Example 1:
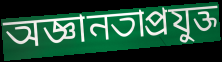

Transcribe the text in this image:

অজ্ঞানতাপ্রযুক্ত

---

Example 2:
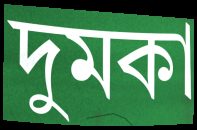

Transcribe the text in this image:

দুমকা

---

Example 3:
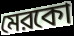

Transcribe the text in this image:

মেরকো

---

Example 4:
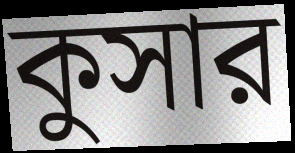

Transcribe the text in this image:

কুসার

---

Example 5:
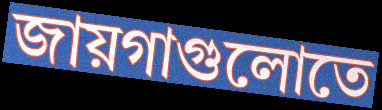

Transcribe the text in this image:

জায়গাগুলোতে